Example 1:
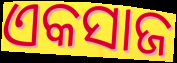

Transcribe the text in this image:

ଏକସାଜ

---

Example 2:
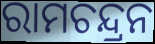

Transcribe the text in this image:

ରାମଚନ୍ଦ୍ରନ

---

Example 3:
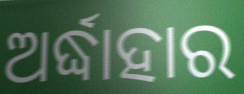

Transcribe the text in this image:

ଅର୍ଦ୍ଧାହାର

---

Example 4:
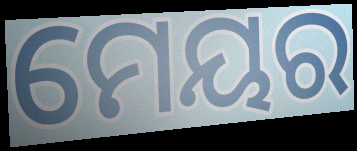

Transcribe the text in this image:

ମେୟର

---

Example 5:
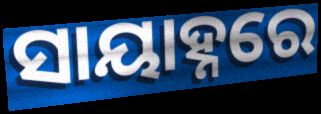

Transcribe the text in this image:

ସାୟାହ୍ନରେ